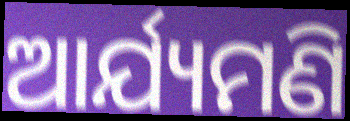
ଆର୍ଯ୍ୟମଣି